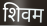
शिवम